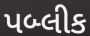
પબ્લીક